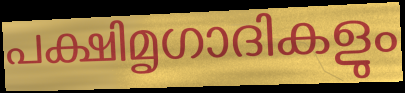
പക്ഷിമൃഗാദികളും